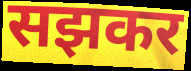
सझकर